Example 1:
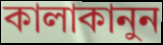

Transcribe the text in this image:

কালাকানুন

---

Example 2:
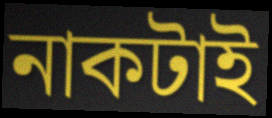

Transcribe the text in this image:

নাকটাই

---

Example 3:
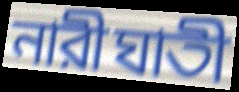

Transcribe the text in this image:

নারীঘাতী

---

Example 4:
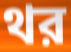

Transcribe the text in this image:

থর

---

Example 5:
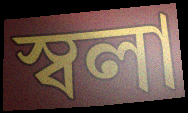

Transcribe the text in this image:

স্বলা